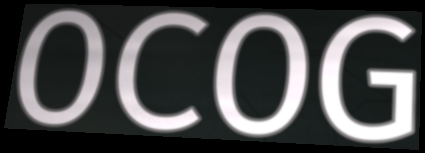
OCOG